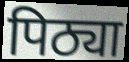
पिठ्या